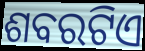
ଶବରଟିଏ